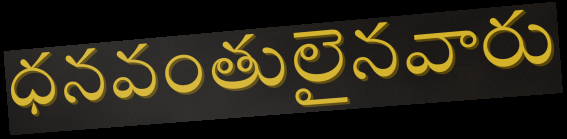
ధనవంతులైనవారు